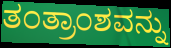
ತಂತ್ರಾಂಶವನ್ನು